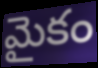
మైకం